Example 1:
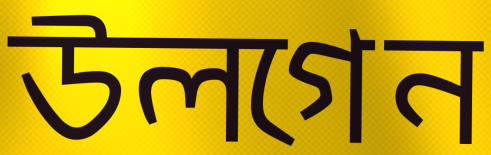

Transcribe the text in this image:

উলগেন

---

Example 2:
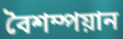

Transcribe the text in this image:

বৈশম্পয়ান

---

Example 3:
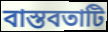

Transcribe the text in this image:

বাস্তবতাটি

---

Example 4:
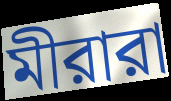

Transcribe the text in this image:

মীরারা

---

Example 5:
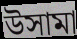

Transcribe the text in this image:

উসামা